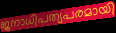
ജനാധിപത്യപരമായി